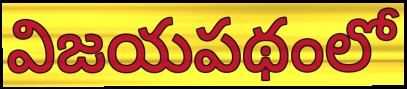
విజయపథంలో